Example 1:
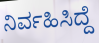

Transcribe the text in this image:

ನಿರ್ವಹಿಸಿದ್ದೆ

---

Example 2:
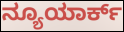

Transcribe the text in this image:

ನ್ಯೂಯಾರ್ಕ್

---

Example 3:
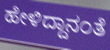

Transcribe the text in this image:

ಹೇಳಿದ್ದಾನಂತೆ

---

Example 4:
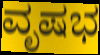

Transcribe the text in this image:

ವೃಷಭ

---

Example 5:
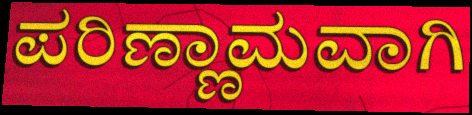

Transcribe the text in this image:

ಪರಿಣ್ಣಾಮವಾಗಿ